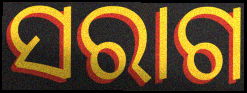
ସରାଗ